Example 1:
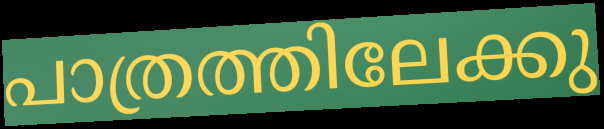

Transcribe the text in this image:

പാത്രത്തിലേക്കു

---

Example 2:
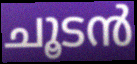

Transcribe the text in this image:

ചൂടൻ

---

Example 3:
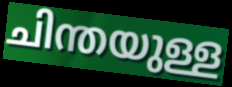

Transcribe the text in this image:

ചിന്തയുള്ള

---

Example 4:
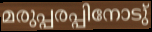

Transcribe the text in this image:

മരുപ്പരപ്പിനോടു്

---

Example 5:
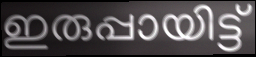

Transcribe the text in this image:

ഇരുപ്പായിട്ട്